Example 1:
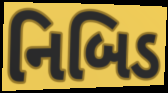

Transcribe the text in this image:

નિબિડ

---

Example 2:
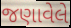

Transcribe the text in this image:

જણાવેલે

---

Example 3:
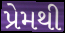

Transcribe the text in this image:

પ્રેમથી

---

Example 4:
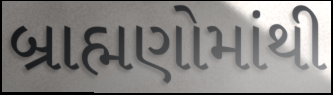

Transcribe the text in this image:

બ્રાહ્મણોમાંથી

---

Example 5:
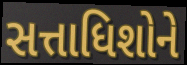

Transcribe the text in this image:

સત્તાધિશોને